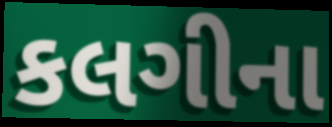
કલગીના